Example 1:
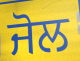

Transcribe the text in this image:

ਜੋਲ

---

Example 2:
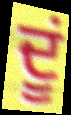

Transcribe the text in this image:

ਦੂਂ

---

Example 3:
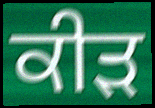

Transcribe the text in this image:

ਕੀੜ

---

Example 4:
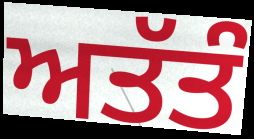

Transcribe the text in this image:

ਅਤੱਤੰ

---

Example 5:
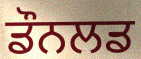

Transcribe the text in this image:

ਡੌਨਲਡ